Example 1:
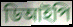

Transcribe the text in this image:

ডিআইপি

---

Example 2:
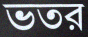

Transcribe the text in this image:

ভতর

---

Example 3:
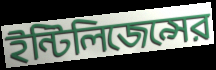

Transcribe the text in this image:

ইন্টিলিজেন্সের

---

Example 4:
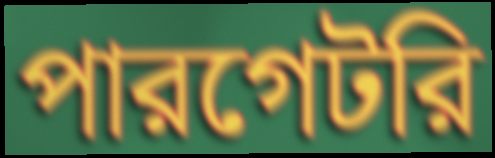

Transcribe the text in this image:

পারগেটরি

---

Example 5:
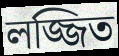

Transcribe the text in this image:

লজ্জিত